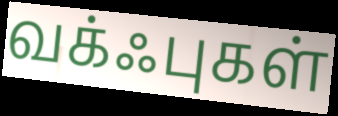
வக்ஃபுகள்